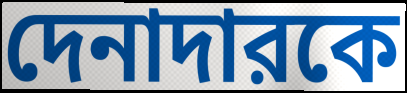
দেনাদারকে